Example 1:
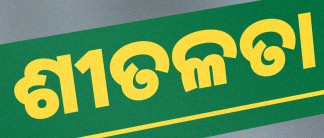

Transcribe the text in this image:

ଶୀତଳତା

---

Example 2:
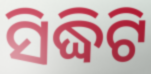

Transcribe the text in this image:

ସିଦ୍ଧିଟି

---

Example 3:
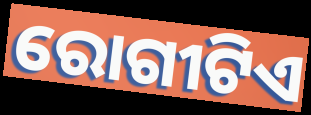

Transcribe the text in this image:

ରୋଗୀଟିଏ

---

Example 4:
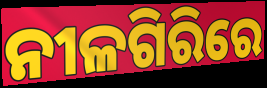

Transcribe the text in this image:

ନୀଳଗିରିରେ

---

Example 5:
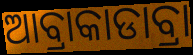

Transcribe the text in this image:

ଆବ୍ରାକାଡାବ୍ରା